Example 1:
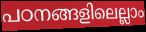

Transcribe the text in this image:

പഠനങ്ങളിലെല്ലാം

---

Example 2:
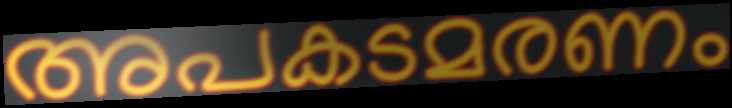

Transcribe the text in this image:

അപകടമരണം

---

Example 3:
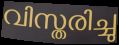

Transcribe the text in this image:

വിസ്തരിച്ചു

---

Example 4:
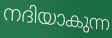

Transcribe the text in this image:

നദിയാകുന്ന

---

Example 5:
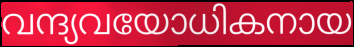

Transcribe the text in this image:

വന്ദ്യവയോധികനായ